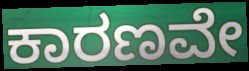
ಕಾರಣವೇ